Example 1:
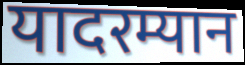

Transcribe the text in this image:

यादरम्यान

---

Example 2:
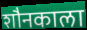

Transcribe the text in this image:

शौनकाला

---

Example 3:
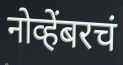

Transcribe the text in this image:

नोव्हेंबरचं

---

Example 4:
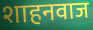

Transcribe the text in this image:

शाहनवाज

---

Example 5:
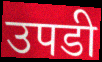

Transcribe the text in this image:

उपडी